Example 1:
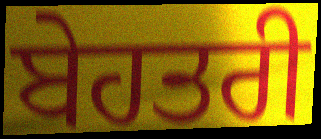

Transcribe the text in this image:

ਬੇਹਤਰੀ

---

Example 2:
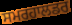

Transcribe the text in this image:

ਸਮਰਹਾਲਡਰ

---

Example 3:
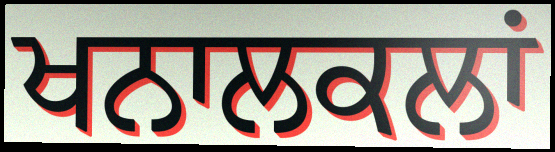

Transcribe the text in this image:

ਖਨਾਲਕਲਾਂ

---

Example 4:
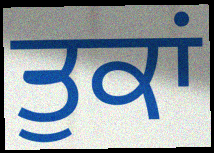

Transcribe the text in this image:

ਤੁਕਾਂ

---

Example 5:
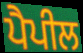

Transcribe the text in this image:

ਪੈਪੀਲ